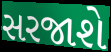
સરજાશે